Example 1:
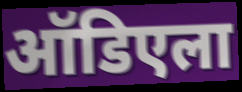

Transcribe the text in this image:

ऑडिएला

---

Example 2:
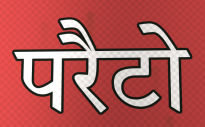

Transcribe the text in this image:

परैटो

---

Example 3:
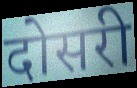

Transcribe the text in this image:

दोसरी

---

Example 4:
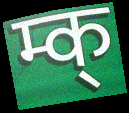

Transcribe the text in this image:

म्क्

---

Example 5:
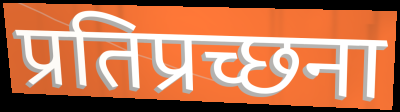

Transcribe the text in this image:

प्रतिप्रच्छना